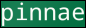
pinnae